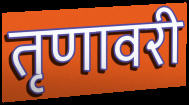
तृणावरी